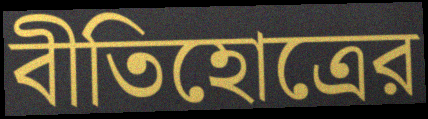
বীতিহোত্রের